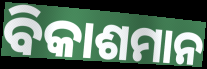
ବିକାଶମାନ